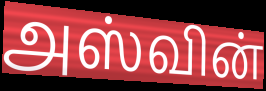
அஸ்வின்